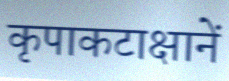
कृपाकटाक्षानें